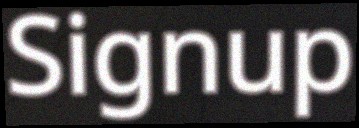
Signup